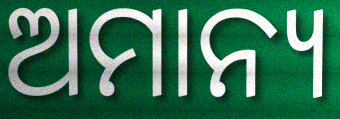
ଅମାନ୍ଯ